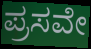
ಪ್ರಸವೇ